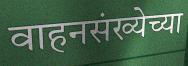
वाहनसंख्येच्या